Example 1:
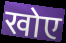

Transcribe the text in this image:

खोए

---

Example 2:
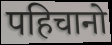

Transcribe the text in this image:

पहिचानो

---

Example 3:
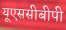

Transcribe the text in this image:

यूएससीबीपी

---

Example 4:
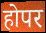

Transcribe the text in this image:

होपर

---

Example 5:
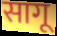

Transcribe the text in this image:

सागू